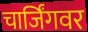
चार्जिंगवर